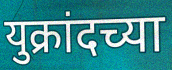
युक्रांदच्या